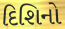
દિશિનો